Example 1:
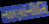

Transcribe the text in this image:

નાણાંનીતિ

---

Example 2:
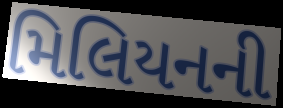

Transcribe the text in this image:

મિલિયનની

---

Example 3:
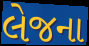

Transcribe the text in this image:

લેજના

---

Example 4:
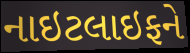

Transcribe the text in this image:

નાઇટલાઇફને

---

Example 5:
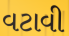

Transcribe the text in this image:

વટાવી